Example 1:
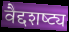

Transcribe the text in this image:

वैद्दशष्ट्य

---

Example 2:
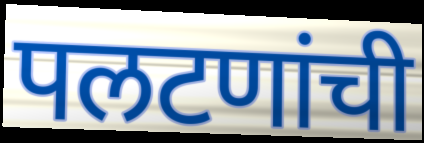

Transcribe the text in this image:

पलटणांची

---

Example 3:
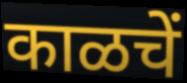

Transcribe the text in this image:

काळचें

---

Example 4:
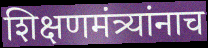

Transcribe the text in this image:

शिक्षणमंत्र्यांनाच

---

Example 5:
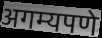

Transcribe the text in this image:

अगम्यपणे